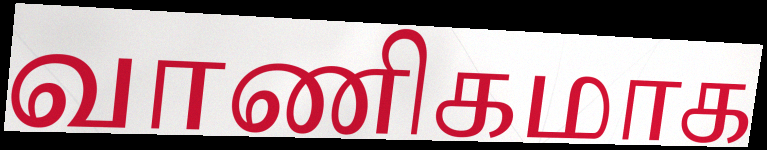
வாணிகமாக